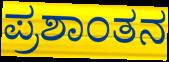
ಪ್ರಶಾಂತನ